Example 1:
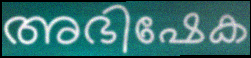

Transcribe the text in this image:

അഭിഷേക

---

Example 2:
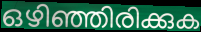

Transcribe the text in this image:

ഒഴിഞ്ഞിരിക്കുക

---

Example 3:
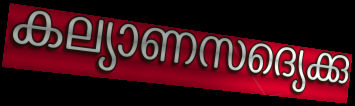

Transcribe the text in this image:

കല്യാണസദ്യെക്കു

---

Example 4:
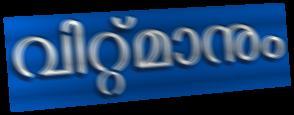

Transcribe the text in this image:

വിറ്റ്മാനും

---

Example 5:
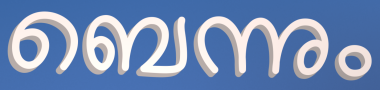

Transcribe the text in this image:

ബെന്നും